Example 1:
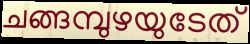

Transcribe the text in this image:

ചങ്ങമ്പുഴയുടേത്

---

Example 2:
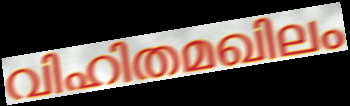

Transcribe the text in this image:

വിഹിതമഖിലം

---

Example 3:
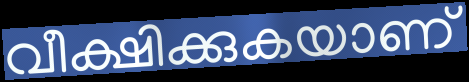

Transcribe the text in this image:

വീക്ഷിക്കുകയാണ്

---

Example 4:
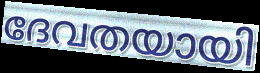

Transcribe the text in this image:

ദേവതയായി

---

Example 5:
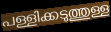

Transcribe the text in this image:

പള്ളിക്കടുത്തുള്ള